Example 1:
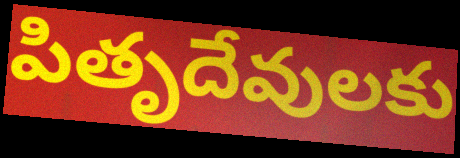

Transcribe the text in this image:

పితృదేవులకు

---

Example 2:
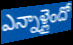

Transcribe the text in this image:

ఎన్నాళ్లైందో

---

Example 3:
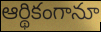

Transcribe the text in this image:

ఆర్థికంగానూ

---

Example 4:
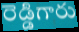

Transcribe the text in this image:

రెడ్డిగారు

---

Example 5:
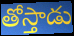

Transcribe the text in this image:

తోస్తాడు